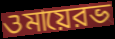
ওমায়েরভ